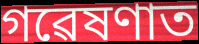
গৱেষণাত